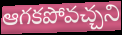
ఆగకపోవచ్చని